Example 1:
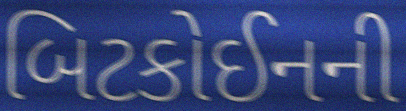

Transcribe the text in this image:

બિટકોઈનની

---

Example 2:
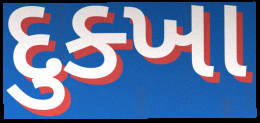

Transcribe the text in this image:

દુક્ખા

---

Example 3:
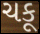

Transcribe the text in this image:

ચકૂ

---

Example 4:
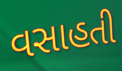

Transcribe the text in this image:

વસાહતી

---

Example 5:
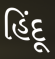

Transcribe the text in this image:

હિંદૂ